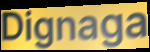
Dignaga